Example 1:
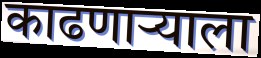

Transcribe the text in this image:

काढणार्‍याला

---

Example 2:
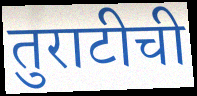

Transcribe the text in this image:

तुराटीची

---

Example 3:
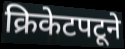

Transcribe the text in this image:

क्रिकेटपटूने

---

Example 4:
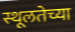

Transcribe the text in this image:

स्थूलतेच्या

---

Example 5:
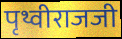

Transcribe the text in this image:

पृथ्वीराजजी